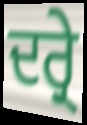
ਦਰ੍ਰੇ